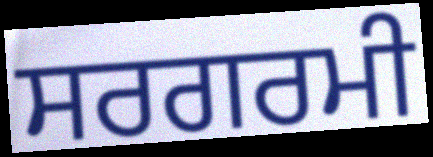
ਸਰਗਰਮੀ